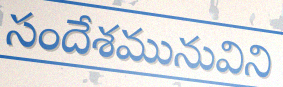
సందేశమునువిని